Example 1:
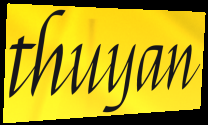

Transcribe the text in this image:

thuyan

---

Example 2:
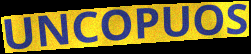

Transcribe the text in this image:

UNCOPUOS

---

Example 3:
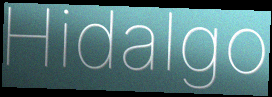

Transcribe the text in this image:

Hidalgo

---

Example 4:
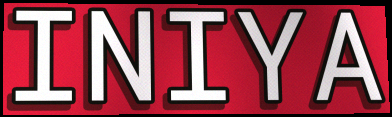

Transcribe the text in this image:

INIYA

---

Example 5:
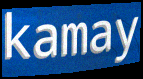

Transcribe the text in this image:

kamay